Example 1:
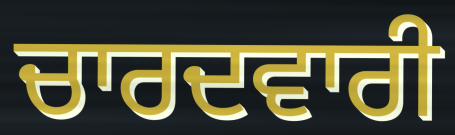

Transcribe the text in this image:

ਚਾਰਦਵਾਰੀ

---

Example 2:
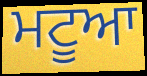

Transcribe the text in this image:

ਮਟੂਆ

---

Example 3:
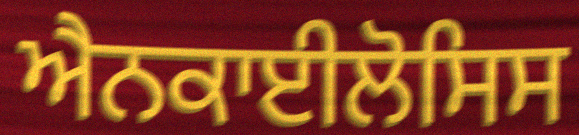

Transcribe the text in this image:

ਐਨਕਾਈਲੋਸਿਸ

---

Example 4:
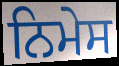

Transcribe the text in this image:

ਨਿਮੇਸ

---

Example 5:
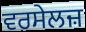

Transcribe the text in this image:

ਵਰਸੇਲਜ਼